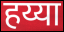
हय्या